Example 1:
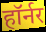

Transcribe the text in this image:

हॉर्नर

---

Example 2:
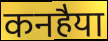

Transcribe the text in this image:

कनहैया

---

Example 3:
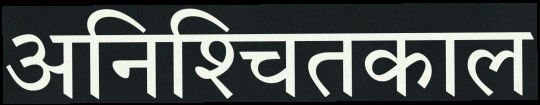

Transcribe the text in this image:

अनिश्‍चितकाल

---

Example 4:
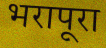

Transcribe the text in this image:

भरापूरा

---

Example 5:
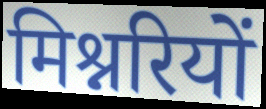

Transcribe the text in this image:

मिश्नरियों